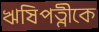
ঋষিপত্নীকে